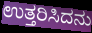
ಉತ್ತರಿಸಿದನು